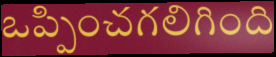
ఒప్పించగలిగింది